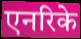
एनरिके